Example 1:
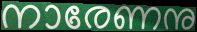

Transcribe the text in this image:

നാരേണനു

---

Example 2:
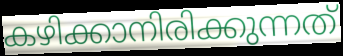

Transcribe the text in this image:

കഴിക്കാനിരിക്കുന്നത്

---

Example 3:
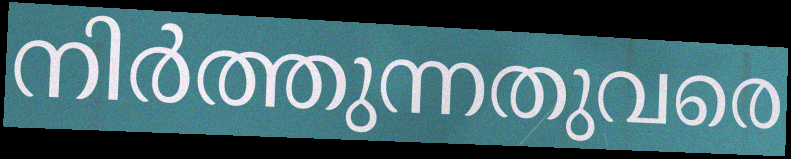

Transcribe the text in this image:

നിർത്തുന്നതുവരെ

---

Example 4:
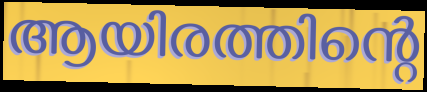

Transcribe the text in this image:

ആയിരത്തിന്റെ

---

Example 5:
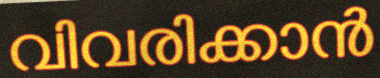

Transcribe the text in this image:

വിവരിക്കാൻ